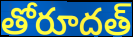
తోరూదత్